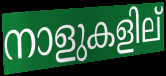
നാളുകളില്